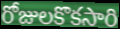
రోజులకొకసారి